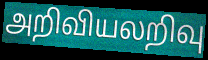
அறிவியலறிவு